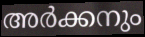
അർക്കനും